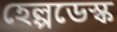
হেল্পডেস্ক